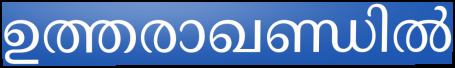
ഉത്തരാഖണ്ഡിൽ